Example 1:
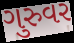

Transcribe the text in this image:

ગુરુવર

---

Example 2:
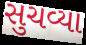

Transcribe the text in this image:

સુચવ્યા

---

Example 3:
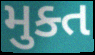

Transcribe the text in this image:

મુક્ત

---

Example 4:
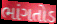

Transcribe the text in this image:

ભાંગતોડ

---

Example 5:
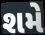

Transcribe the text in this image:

શમે